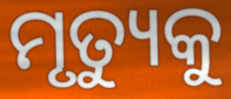
ମୃତ୍ୟୁକୁ